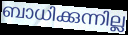
ബാധിക്കുന്നില്ല